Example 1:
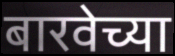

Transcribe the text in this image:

बारवेच्या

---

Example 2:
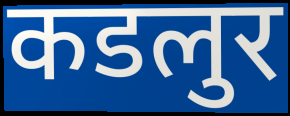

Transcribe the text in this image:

कडलुर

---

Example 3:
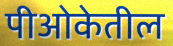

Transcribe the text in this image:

पीओकेतील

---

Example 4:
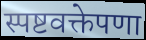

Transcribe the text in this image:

स्पष्टवक्तेपणा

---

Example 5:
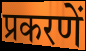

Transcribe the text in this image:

प्रकरणें